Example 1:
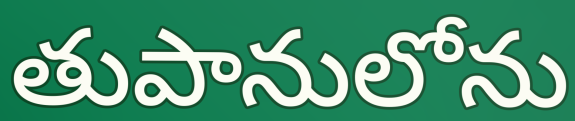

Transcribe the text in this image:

తుపానులోను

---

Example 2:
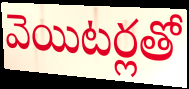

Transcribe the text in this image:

వెయిటర్లతో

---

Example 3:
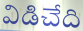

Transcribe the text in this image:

విడిచేది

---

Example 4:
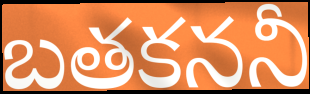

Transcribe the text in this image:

బతకననీ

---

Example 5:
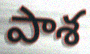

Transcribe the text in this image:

పాశ